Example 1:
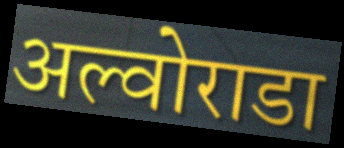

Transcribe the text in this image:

अल्वोराडा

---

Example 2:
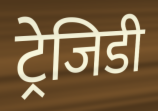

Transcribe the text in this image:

ट्रेजिडी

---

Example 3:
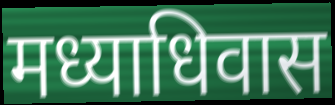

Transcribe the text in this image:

मध्याधिवास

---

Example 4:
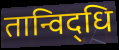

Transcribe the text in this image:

तान्विद्धि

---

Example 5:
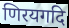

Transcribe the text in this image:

णिरयगदि